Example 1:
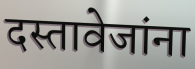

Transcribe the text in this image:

दस्तावेजांना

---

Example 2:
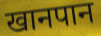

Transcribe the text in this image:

खानपान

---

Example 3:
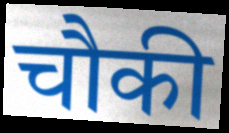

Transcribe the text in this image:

चौकी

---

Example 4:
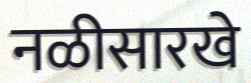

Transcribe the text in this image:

नळीसारखे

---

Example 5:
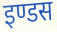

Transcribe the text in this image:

इण्डस